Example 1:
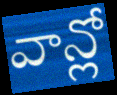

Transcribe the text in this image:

వాన్లో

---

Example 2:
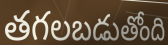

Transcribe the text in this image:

తగలబడుతోంది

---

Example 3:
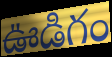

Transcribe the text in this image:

ఊడిగం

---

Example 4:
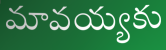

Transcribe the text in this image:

మావయ్యకు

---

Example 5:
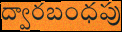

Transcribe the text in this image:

ద్వారబంధపు